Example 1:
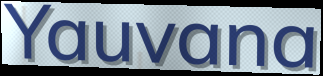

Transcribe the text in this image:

Yauvana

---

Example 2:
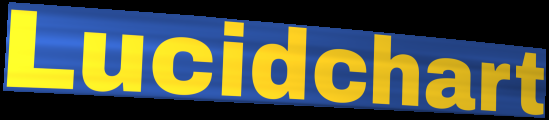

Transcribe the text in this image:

Lucidchart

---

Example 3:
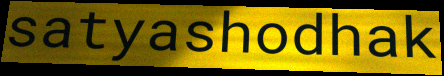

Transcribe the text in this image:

satyashodhak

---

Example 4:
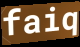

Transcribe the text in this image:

faiq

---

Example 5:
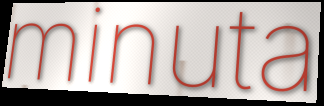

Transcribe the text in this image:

minuta